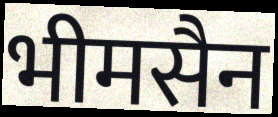
भीमसैन